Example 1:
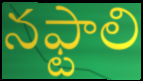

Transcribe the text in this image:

నఫ్టాలి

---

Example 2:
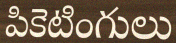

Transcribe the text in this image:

పికెటింగులు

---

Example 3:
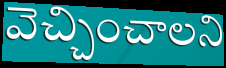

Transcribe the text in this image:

వెచ్చించాలని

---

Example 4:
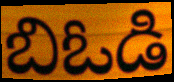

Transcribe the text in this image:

బిఓడి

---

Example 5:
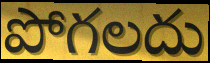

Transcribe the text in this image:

పోగలదు